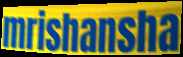
mrishansha